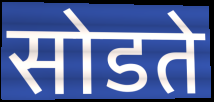
सोडते